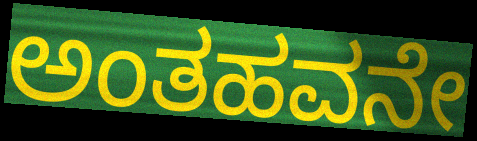
ಅಂತಹವನೇ